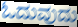
ಓದುವುದು